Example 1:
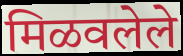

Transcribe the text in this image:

मिळवलेले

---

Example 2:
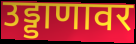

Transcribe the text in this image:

उड्डाणावर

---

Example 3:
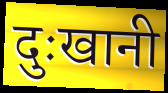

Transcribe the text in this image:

दुःखानी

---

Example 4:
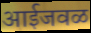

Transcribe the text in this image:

आईजवळ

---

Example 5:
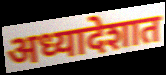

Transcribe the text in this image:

अध्यादेशात